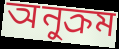
অনুক্রম